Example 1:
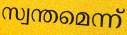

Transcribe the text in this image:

സ്വന്തമെന്ന്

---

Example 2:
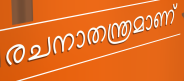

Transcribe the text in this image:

രചനാതന്ത്രമാണ്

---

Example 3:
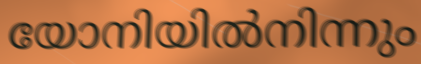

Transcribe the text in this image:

യോനിയിൽനിന്നും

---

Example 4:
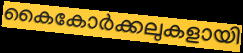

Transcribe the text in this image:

കൈകോർക്കലുകളായി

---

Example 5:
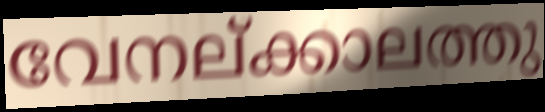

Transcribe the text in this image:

വേനല്ക്കാലത്തു